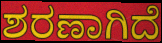
ಶರಣಾಗಿದೆ